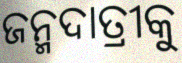
ଜନ୍ମଦାତ୍ରୀକୁ